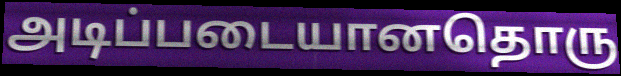
அடிப்படையானதொரு